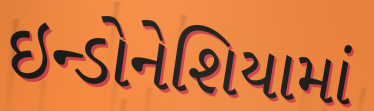
ઇન્ડોનેશિયામાં